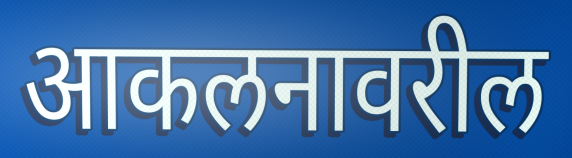
आकलनावरील